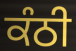
ਕੰਠੀ